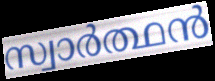
സ്വാർത്ഥൻ